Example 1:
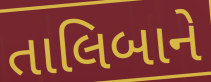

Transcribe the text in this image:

તાલિબાને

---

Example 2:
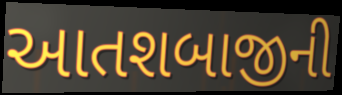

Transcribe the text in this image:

આતશબાજીની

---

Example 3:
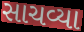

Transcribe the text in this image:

સાચવ્યા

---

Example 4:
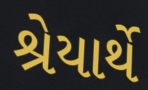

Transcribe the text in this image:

શ્રેયાર્થે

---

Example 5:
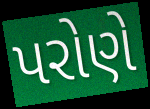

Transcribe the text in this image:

પરોણે